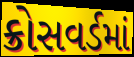
ક્રોસવર્ડમાં